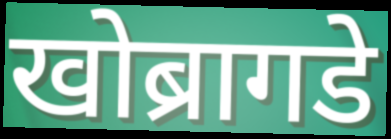
खोब्रागडे